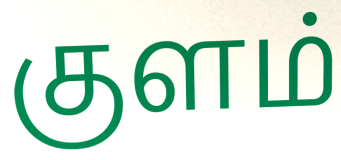
குளம்